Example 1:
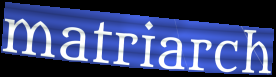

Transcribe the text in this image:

matriarch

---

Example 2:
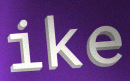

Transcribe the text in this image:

ike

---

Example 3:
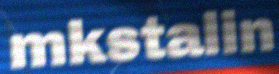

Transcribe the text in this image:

mkstalin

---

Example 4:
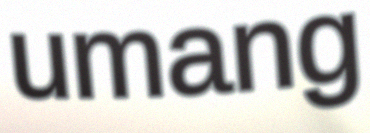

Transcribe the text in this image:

umang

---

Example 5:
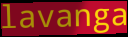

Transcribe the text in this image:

lavanga